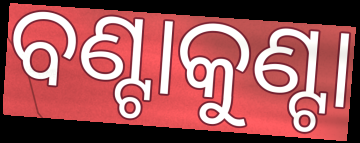
ବଣ୍ଟାକୁଣ୍ଟା